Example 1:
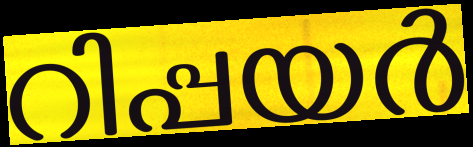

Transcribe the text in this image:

റിപ്പയർ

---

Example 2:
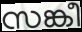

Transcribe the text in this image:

സങ്കീ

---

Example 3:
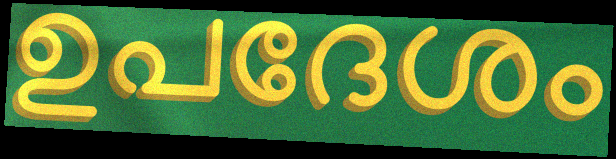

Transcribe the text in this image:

ഉപദേശം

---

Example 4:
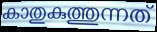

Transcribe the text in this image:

കാതുകുത്തുന്നത്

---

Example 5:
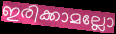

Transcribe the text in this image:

ഇരിക്കാമല്ലോ